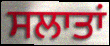
ਸਲਾਤਾਂ